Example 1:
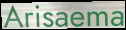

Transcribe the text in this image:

Arisaema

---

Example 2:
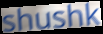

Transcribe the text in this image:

shushk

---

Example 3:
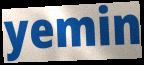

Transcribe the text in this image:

yemin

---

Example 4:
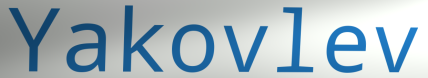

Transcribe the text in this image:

Yakovlev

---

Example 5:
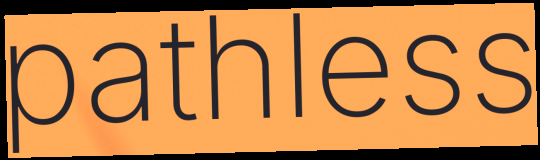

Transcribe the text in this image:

pathless